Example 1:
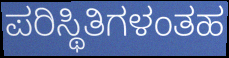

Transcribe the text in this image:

ಪರಿಸ್ಥಿತಿಗಳಂತಹ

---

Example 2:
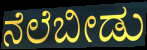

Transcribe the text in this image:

ನೆಲೆಬೀಡು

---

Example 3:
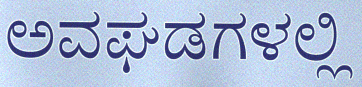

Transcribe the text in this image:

ಅವಘಡಗಳಲ್ಲಿ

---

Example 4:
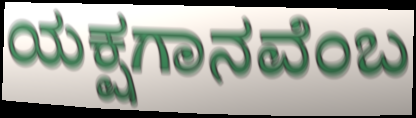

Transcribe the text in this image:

ಯಕ್ಷಗಾನವೆಂಬ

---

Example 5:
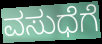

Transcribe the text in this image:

ವಸುಧೆಗೆ